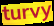
turvy